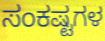
ಸಂಕಷ್ಟಗಳ